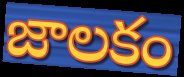
జాలకం